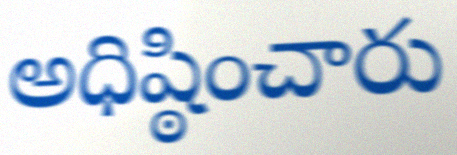
అధిష్ఠించారు